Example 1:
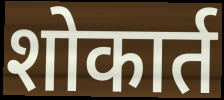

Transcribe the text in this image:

शोकार्त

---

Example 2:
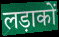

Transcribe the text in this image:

लड़ाकों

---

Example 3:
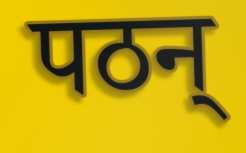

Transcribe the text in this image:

पठन्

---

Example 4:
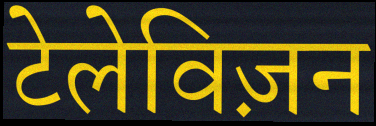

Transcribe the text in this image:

टेलेविज़न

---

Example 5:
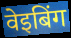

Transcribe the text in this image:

वेइबिंग